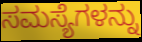
ಸಮಸ್ಯೆಗಳನ್ನು